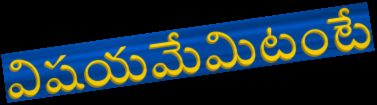
విషయమేమిటంటే